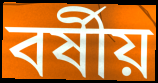
বর্ষীয়